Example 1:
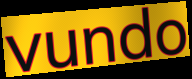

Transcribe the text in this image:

vundo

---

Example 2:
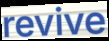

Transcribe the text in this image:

revive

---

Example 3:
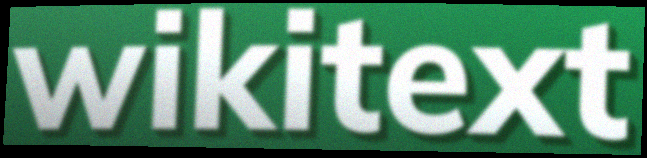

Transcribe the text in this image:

wikitext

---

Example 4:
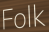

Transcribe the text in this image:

Folk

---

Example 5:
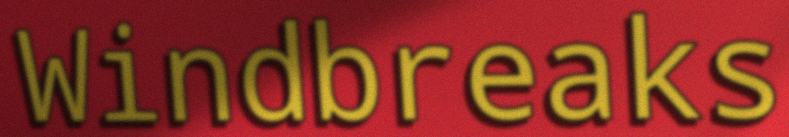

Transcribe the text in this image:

Windbreaks